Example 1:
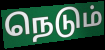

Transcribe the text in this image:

நெடும்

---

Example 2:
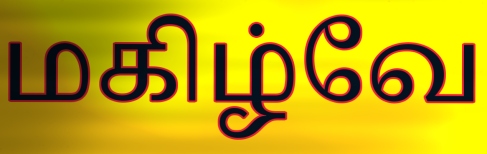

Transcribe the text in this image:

மகிழ்வே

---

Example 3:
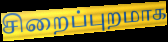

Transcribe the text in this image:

சிறைப்புறமாக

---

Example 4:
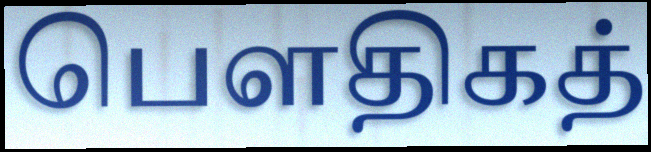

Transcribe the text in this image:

பௌதிகத்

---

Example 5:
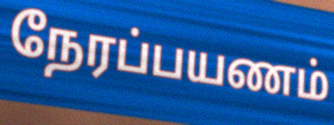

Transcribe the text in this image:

நேரப்பயணம்